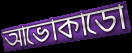
আভোকাডো